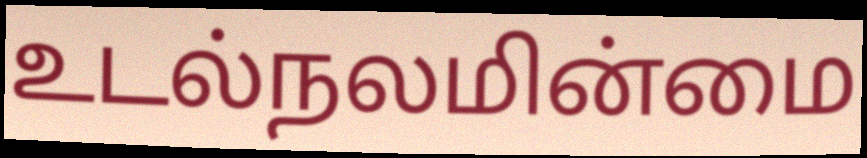
உடல்நலமின்மை